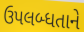
ઉપલબ્ધતાને